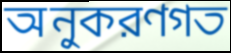
অনুকরণগত